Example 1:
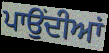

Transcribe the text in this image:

ਪਾਉਂਦੀਆਂ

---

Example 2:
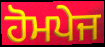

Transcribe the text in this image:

ਹੋਮਪੇਜ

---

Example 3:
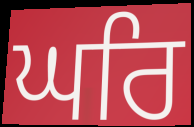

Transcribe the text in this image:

ਘਰਿ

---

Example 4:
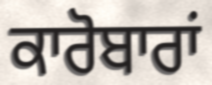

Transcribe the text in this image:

ਕਾਰੋਬਾਰਾਂ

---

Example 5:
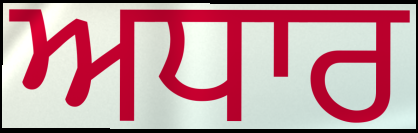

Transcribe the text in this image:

ਅਧਾਰ